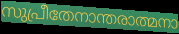
സുപ്രീതേനാന്തരാത്മനാ